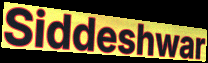
Siddeshwar